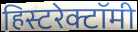
हिस्टरेक्टॉमी